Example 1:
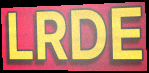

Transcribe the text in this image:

LRDE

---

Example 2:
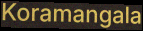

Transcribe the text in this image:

Koramangala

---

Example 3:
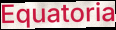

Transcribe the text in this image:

Equatoria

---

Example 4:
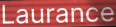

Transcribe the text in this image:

Laurance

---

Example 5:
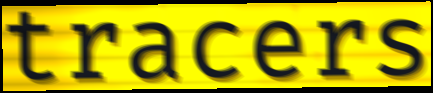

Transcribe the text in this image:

tracers